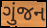
ગુંજન